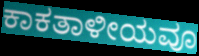
ಕಾಕತಾಳೀಯವೂ